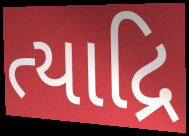
ત્યાદ્રિ